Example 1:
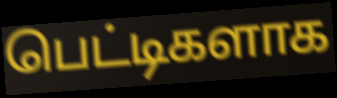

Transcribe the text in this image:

பெட்டிகளாக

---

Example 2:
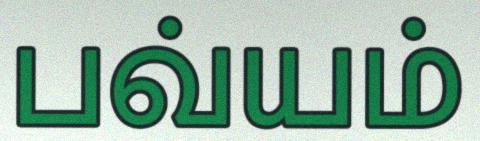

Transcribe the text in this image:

பவ்யம்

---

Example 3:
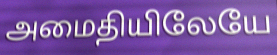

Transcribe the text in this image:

அமைதியிலேயே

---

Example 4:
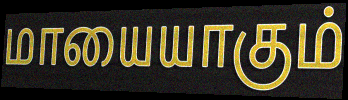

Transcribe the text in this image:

மாயையாகும்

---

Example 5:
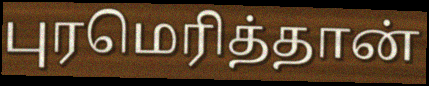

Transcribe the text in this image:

புரமெரித்தான்